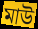
মাউ